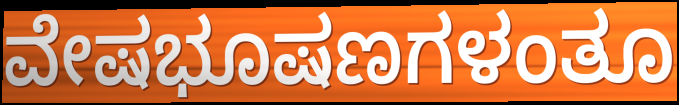
ವೇಷಭೂಷಣಗಳಂತೂ